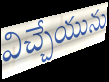
విచ్చేయును